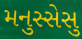
મનુસ્સેસુ